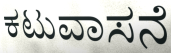
ಕಟುವಾಸನೆ